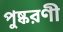
পুষ্করণী